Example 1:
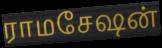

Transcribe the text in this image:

ராமசேஷன்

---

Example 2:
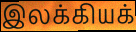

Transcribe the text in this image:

இலக்கியக்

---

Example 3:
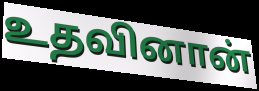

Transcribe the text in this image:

உதவினான்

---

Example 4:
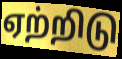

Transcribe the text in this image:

ஏற்றிடு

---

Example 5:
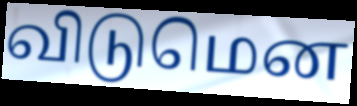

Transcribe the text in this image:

விடுமென